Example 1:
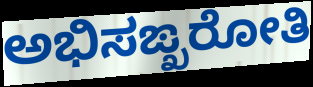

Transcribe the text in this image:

ಅಭಿಸಙ್ಖರೋತಿ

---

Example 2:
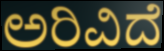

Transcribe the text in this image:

ಅರಿವಿದೆ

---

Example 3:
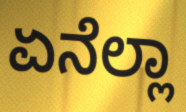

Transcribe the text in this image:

ಏನೆಲ್ಲಾ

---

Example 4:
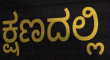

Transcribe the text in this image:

ಕ್ಷಣದಲ್ಲಿ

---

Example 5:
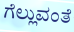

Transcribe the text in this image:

ಗೆಲ್ಲುವಂತೆ